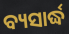
ବ୍ୟସାର୍ଦ୍ଧ